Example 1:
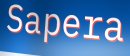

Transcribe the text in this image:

Sapera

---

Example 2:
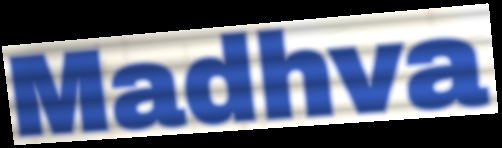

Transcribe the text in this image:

Madhva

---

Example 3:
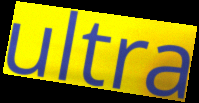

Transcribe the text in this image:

ultra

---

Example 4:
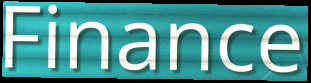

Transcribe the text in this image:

Finance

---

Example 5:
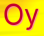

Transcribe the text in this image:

Oy